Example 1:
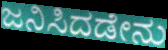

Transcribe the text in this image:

ಜನಿಸಿದಡೇನು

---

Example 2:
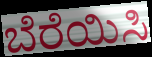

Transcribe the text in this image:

ಬೆರೆಯಿಸಿ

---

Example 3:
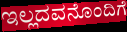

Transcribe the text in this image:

ಇಲ್ಲದವನೊಂದಿಗೆ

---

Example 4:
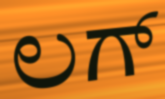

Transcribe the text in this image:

ಲಗ್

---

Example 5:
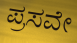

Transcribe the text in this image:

ಪ್ರಸವೇ